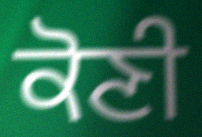
ਕੋਣੀ